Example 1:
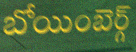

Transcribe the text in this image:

బోయింబెర్గ్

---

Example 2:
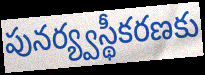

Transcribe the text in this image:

పునర్య్వస్థీకరణకు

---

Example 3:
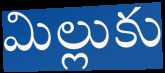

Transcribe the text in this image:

మిల్లుకు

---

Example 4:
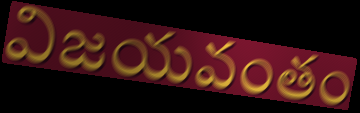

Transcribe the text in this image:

విజయవంతం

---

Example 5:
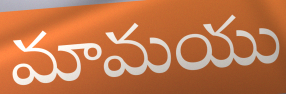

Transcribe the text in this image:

మామయు